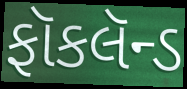
ફૉકલૅન્ડ